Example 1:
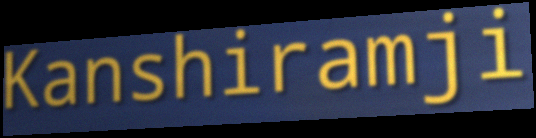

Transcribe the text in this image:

Kanshiramji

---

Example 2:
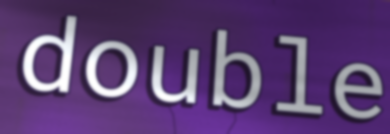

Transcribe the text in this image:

double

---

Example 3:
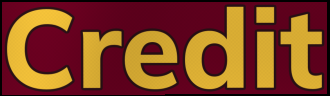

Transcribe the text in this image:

Credit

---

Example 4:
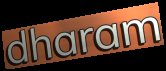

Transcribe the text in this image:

dharam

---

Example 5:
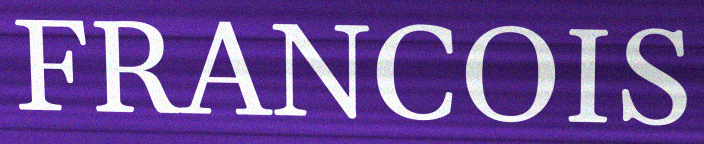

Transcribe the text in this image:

FRANCOIS